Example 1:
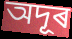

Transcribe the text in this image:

অদূৰ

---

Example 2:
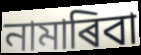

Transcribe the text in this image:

নামাৰিবা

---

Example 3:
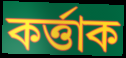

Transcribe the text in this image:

কৰ্ত্তাক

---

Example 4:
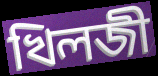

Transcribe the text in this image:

খিলজী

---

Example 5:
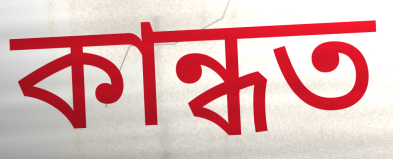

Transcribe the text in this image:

কান্ধত